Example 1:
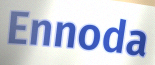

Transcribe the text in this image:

Ennoda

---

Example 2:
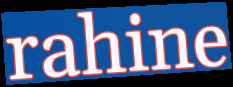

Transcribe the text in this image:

rahine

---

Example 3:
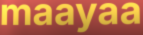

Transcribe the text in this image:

maayaa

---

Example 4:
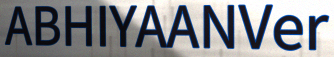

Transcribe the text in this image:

ABHIYAANVer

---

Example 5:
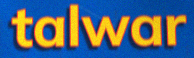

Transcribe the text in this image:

talwar